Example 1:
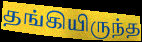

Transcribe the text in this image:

தங்கியிருந்த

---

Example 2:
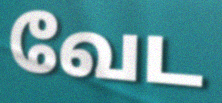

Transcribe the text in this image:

வேட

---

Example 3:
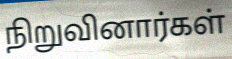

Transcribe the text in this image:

நிறுவினார்கள்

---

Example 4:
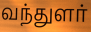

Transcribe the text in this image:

வந்துளர்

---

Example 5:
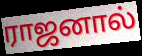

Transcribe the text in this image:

ராஜனால்